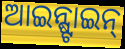
ଆଇନ୍ଷ୍ଟାଇନ୍